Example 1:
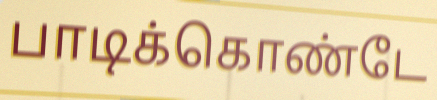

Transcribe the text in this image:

பாடிக்கொண்டே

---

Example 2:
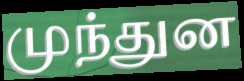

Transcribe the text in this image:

முந்துன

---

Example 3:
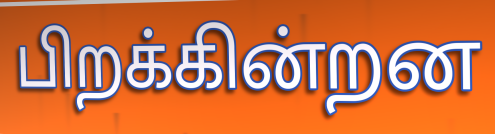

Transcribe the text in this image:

பிறக்கின்றன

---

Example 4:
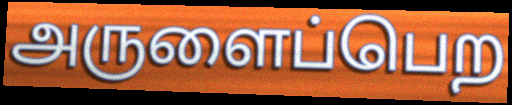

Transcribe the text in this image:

அருளைப்பெற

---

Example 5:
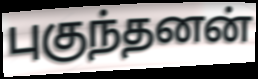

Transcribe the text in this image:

புகுந்தனன்